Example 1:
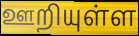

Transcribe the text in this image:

ஊறியுள்ள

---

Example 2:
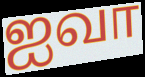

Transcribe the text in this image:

ஐவா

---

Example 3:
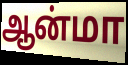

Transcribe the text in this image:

ஆன்மா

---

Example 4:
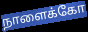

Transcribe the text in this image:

நாளைக்கோ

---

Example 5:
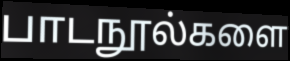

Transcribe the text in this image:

பாடநூல்களை